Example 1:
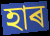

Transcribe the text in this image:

হাৰ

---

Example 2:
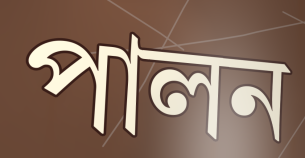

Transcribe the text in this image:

পালন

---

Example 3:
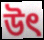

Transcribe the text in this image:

উৎ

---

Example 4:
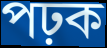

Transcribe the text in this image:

পঢ়ক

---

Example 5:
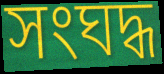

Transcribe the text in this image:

সংঘদ্ধ